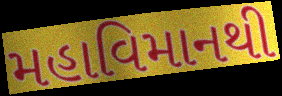
મહાવિમાનથી